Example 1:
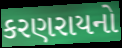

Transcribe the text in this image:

કરણરાયનો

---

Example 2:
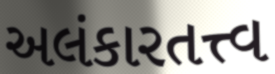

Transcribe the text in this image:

અલંકારતત્ત્વ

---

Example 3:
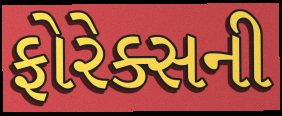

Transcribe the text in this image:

ફોરેક્સની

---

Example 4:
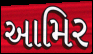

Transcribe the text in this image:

આમિર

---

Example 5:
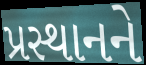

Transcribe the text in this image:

પ્રસ્થાનને